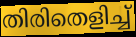
തിരിതെളിച്ച്